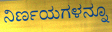
ನಿರ್ಣಯಗಳನ್ನೂ